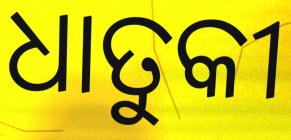
ଧାତୁକୀ